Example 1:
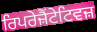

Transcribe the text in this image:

ਰਿਪਰੇਜ਼ੈਂਟੇਟਿਵਜ਼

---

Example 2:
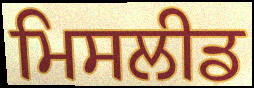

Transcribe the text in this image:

ਮਿਸਲੀਡ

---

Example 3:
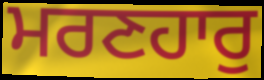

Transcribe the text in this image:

ਮਰਣਹਾਰੁ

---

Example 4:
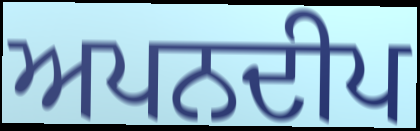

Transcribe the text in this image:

ਅਪਨਦੀਪ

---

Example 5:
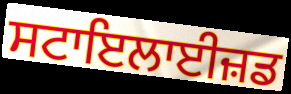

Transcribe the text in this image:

ਸਟਾਇਲਾਈਜ਼ਡ